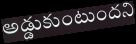
అడ్డుకుంటుందని